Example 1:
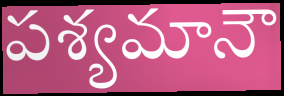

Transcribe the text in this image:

పశ్యమానౌ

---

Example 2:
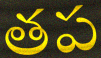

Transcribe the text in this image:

తప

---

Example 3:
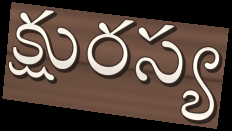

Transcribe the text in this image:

క్షురస్య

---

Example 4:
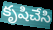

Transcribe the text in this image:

కృషిచేసి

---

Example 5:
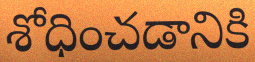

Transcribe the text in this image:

శోధించడానికి